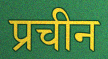
प्रचीन